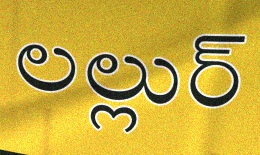
లల్లుర్